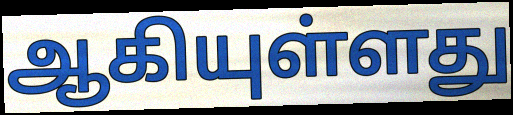
ஆகியுள்ளது